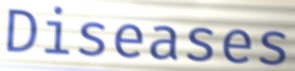
Diseases